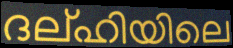
ദല്ഹിയിലെ